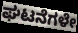
ಘಟನೆಗಳೇ